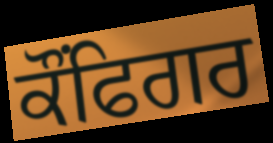
ਕੌਂਫਿਗਰ